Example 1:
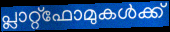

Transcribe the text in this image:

പ്ലാറ്റ്ഫോമുകൾക്ക്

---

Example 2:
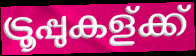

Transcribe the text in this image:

ട്രൂപ്പുകള്ക്ക്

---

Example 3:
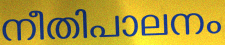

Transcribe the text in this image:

നീതിപാലനം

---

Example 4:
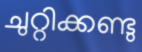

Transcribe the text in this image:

ചുറ്റിക്കണ്ടു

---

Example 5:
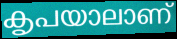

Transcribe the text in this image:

കൃപയാലാണ്